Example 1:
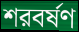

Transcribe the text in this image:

শরবর্ষণ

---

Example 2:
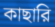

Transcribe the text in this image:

কাছারি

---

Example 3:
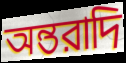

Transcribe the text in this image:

অন্তরাদি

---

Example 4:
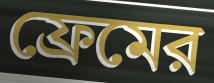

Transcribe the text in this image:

ফ্রেমের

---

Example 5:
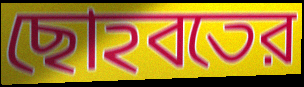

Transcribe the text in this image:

ছোহবতের